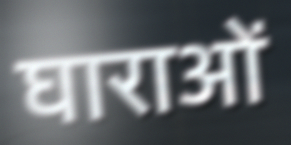
घाराओं